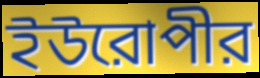
ইউরোপীর